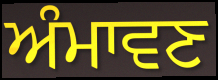
ਅੰਮਾਵਣ